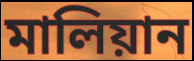
মালিয়ান